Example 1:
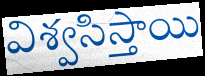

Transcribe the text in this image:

విశ్వసిస్తాయి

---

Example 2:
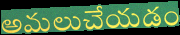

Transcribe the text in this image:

అమలుచేయడం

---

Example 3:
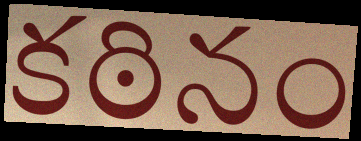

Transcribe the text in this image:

కఠినం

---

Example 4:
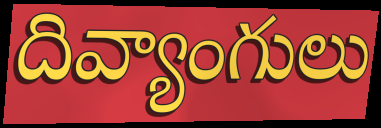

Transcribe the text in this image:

దివ్యాంగులు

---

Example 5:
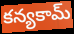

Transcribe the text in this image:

కన్యకామ్